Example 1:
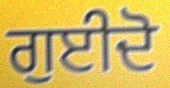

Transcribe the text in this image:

ਗੁਈਦੋ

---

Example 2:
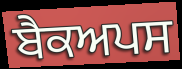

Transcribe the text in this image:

ਬੈਕਅਪਸ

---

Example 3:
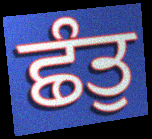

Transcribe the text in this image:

ਛੰਤੁ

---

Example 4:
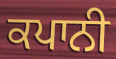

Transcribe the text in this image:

ਕਪਾਨੀ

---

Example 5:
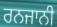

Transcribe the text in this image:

ਰਨਜਾਨੀ